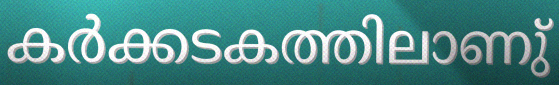
കർക്കടകത്തിലാണു്